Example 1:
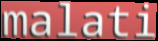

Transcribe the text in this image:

malati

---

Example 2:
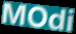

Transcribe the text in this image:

MOdi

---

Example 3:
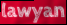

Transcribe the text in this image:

lawyan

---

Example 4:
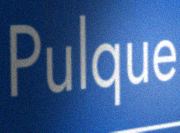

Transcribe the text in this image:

Pulque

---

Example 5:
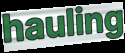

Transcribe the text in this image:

hauling